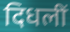
दिधलीं